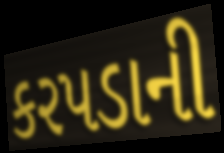
કરપડાની